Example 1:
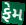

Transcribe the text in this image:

ફેમ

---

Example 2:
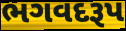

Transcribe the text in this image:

ભગવદરૂપ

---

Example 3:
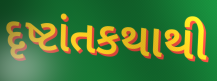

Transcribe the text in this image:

દૃષ્ટાંતકથાથી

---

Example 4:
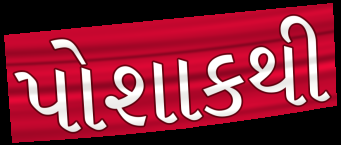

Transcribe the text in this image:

પોશાકથી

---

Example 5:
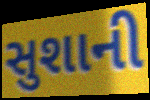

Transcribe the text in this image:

સુશાની